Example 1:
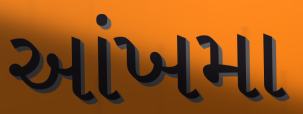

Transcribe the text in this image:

આંખમા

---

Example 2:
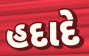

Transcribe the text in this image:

હદાદે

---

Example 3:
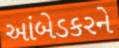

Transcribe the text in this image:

આંબેડકરને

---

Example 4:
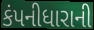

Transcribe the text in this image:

કંપનીધારાની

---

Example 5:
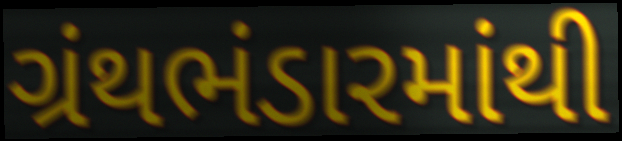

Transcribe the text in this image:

ગ્રંથભંડારમાંથી